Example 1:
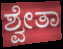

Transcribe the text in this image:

ಶ್ವೇತಾ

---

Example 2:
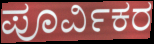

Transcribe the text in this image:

ಪೂರ್ವಿಕರ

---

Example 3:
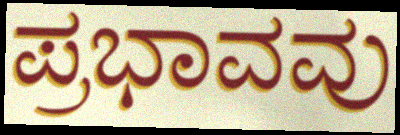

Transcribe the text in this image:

ಪ್ರಭಾವವು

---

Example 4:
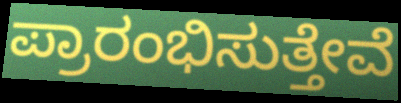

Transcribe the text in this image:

ಪ್ರಾರಂಭಿಸುತ್ತೇವೆ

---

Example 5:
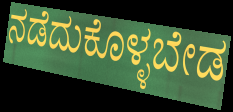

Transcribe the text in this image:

ನಡೆದುಕೊಳ್ಳಬೇಡ